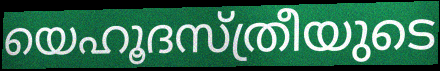
യെഹൂദസ്ത്രീയുടെ